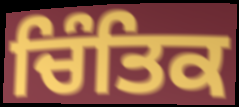
ਚਿੰਤਿਕ